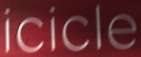
icicle